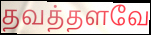
தவத்தளவே